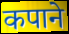
कपाने